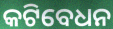
କଟିବେଧନ